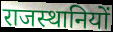
राजस्थानियों